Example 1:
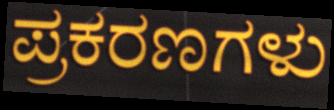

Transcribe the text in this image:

ಪ್ರಕರಣಗಳು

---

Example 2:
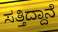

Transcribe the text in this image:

ಸತ್ತಿದ್ದಾನೆ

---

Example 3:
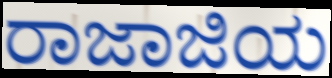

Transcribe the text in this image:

ರಾಜಾಜಿಯ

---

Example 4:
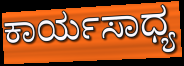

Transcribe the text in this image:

ಕಾರ್ಯಸಾಧ್ಯ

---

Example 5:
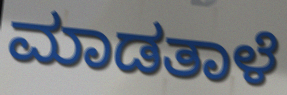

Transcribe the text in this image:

ಮಾಡತಾಳೆ